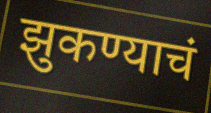
झुकण्याचं